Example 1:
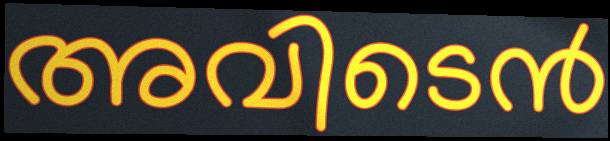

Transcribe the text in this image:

അവിടെൻ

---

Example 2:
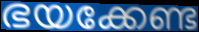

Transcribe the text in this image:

ഭയക്കേണ്ട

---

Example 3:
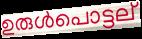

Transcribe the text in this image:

ഉരുൾപൊട്ടല്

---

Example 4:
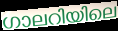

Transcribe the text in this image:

ഗാലറിയിലെ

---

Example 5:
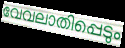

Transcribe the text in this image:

വേവലാതിപ്പെടും